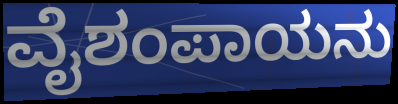
ವೈಶಂಪಾಯನು